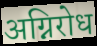
अग्निरोध